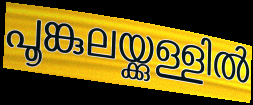
പൂങ്കുലയ്ക്കുള്ളിൽ